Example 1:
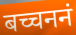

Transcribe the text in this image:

बच्चननं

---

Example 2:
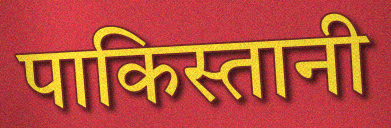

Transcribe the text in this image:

पाकिस्तानी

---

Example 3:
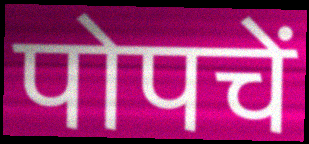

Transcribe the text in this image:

पोपचें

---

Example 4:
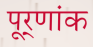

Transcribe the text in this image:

पूर्णांक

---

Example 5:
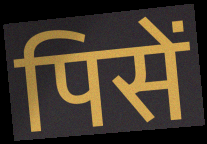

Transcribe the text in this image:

पिसें